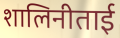
शालिनीताई